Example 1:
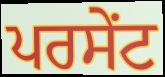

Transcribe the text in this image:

ਪਰਸੇੰਟ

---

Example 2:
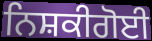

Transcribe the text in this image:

ਨਿਸ਼ਕੀਗੋਈ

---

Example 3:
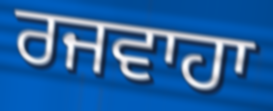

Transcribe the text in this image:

ਰਜਵਾਹਾ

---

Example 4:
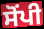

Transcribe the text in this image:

ਸੋੰਪੀ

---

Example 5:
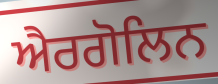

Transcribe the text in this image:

ਐਰਗੋਲਿਨ